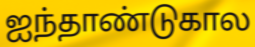
ஐந்தாண்டுகால